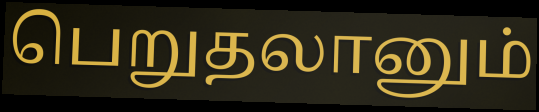
பெறுதலானும்